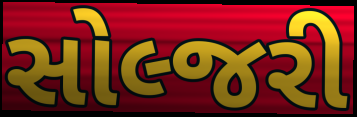
સોલ્જરી